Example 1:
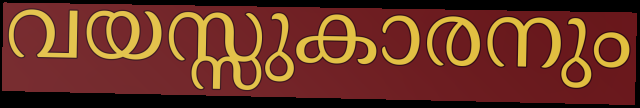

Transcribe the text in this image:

വയസ്സുകാരനും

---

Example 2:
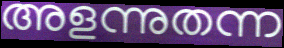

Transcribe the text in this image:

അളന്നുതന്ന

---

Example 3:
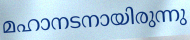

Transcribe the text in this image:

മഹാനടനായിരുന്നു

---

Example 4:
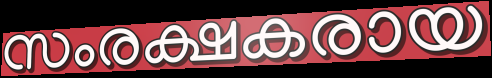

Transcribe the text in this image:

സംരക്ഷകരായ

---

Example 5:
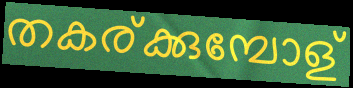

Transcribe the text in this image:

തകര്ക്കുമ്പോള്